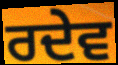
ਰਦੇਵ